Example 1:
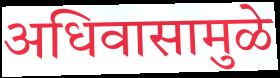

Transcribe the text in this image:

अधिवासामुळे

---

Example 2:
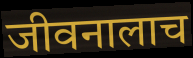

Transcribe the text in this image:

जीवनालाच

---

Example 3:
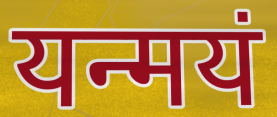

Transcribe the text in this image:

यन्मयं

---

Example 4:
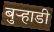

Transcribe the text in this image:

बुऱ्हाडी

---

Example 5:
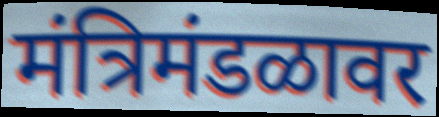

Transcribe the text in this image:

मंत्रिमंडळावर